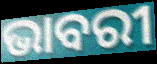
ଭାବରୀ